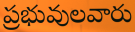
ప్రభువులవారు